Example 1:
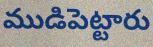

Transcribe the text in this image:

ముడిపెట్టారు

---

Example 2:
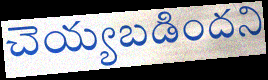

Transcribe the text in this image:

చెయ్యబడిందని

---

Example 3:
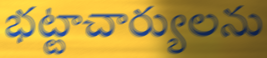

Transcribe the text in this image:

భట్టాచార్యులను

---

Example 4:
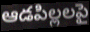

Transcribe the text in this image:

ఆడపిల్లలపై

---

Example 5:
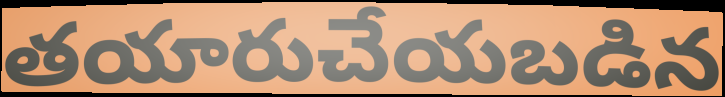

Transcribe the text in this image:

తయారుచేయబడిన